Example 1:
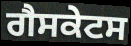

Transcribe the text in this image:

ਗੈਸਕੇਟਸ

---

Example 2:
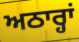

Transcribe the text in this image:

ਅਠਾਰ੍ਹਾਂ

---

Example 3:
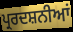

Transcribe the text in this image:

ਪ੍ਰਰਦਸ਼ਨੀਆਂ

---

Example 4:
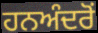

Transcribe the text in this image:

ਹਨਅੰਦਰੋਂ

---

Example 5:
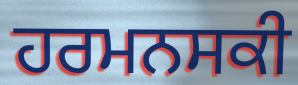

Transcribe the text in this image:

ਹਰਮਨਸਕੀ